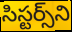
సిస్టర్స్‌ని